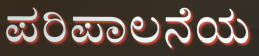
ಪರಿಪಾಲನೆಯ